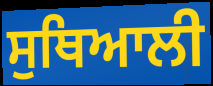
ਸੁਥਿਆਲੀ